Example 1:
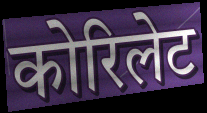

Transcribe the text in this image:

कोरिलेट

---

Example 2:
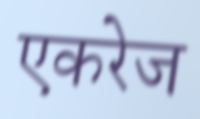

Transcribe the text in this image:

एकरेज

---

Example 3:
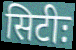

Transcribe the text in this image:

सिटीः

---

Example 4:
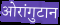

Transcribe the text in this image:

ओरांगुटान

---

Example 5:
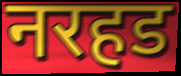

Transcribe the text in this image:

नरहड